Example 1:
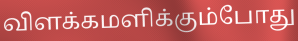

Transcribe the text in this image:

விளக்கமளிக்கும்போது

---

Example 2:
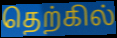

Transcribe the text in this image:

தெற்கில்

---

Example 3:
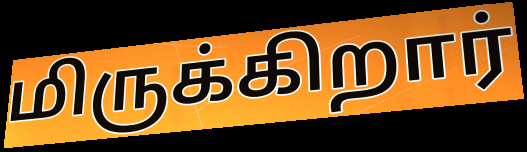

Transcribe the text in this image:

மிருக்கிறார்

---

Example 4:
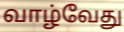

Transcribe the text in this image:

வாழ்வேது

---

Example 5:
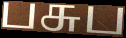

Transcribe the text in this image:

பசுப